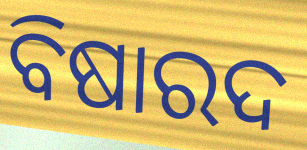
ବିଷାରଦ